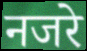
नजरे